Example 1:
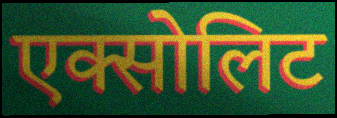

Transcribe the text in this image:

एक्सोलिट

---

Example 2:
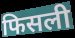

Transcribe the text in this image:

फिसली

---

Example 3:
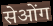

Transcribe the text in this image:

सेओंग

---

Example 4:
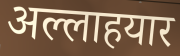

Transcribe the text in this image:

अल्लाहयार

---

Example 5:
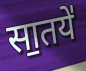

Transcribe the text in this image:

सा॒तये॑